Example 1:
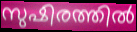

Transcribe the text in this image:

സുഷിരത്തിൽ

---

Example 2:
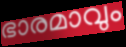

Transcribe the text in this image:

ഭാരമാവും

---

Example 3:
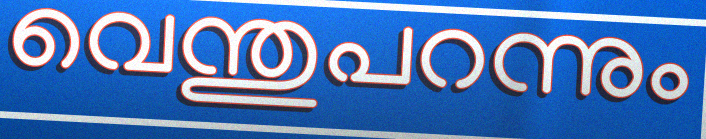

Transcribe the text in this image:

വെന്തുപറന്നും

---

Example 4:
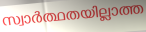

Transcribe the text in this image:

സ്വാർത്ഥതയില്ലാത്ത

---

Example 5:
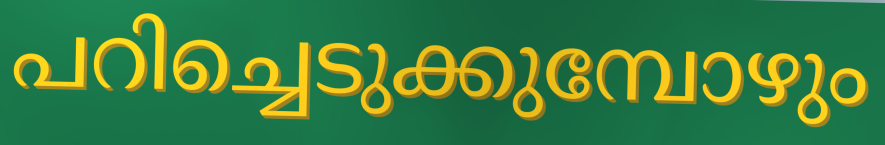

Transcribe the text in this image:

പറിച്ചെടുക്കുമ്പോഴും